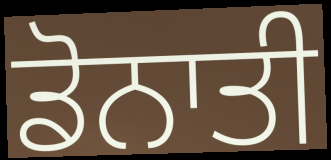
ਡੋਨਾਤੀ